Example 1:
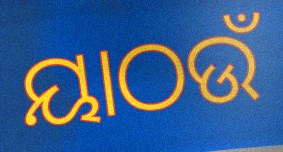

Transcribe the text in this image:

ୟାଠଉଁ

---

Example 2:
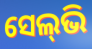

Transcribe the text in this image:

ସେଲ୍‌ଭି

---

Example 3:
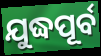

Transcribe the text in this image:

ଯୁଦ୍ଧପୂର୍ବ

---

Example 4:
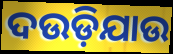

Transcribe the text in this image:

ଦଉଡ଼ିଯାଉ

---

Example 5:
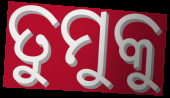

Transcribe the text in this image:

ତୁମୁକୁ